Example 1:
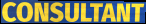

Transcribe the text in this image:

CONSULTANT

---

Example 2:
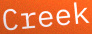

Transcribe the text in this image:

Creek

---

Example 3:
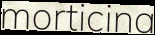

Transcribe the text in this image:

morticina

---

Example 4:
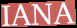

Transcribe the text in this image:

IANA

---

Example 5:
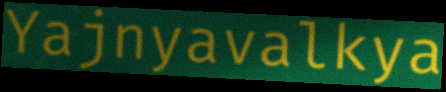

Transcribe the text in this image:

Yajnyavalkya